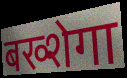
बख्शेगा